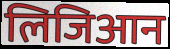
लिजिआन